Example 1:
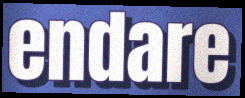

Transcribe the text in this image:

endare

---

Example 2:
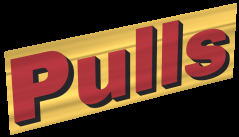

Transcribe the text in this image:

Pulls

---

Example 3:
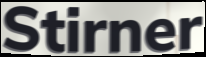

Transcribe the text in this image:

Stirner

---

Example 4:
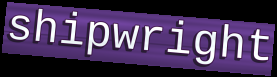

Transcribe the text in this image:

shipwright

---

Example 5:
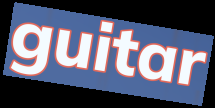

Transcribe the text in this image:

guitar